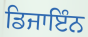
ਡਿਜਾਇੰਨ